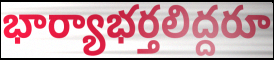
భార్యాభర్తలిద్దరూ